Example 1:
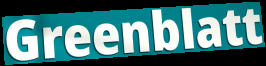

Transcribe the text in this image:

Greenblatt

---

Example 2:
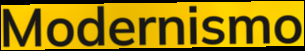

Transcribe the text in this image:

Modernismo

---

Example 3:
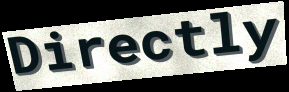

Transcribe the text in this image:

Directly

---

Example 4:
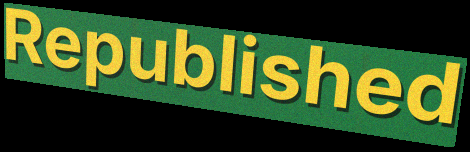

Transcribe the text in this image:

Republished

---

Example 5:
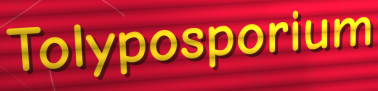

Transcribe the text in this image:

Tolyposporium